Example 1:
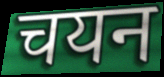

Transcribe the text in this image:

चयन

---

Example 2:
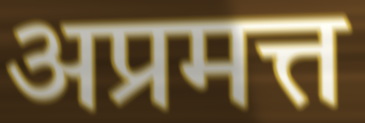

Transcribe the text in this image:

अप्रमत्त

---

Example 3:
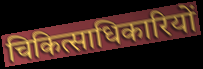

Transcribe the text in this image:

चिकित्साधिकारियों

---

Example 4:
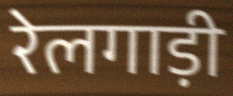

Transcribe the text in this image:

रेलगाड़ी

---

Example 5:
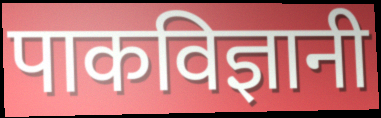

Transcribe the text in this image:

पाकविज्ञानी